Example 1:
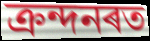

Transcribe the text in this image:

ক্ৰন্দনৰত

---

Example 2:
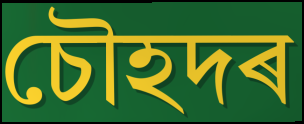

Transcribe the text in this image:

চৌহদৰ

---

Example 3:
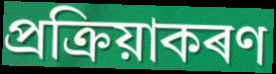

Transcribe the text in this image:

প্ৰক্ৰিয়াকৰণ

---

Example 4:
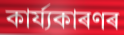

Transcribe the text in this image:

কাৰ্য্যকাৰণৰ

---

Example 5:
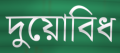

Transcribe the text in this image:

দুয়োবিধ